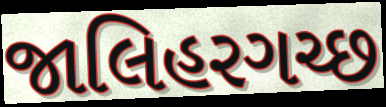
જાલિહરગચ્છ